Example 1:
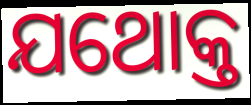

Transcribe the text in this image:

ଯଥୋକ୍ତ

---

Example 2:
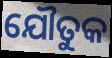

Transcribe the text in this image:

ଯୌତୁକ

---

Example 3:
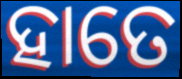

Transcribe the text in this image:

ହାତେ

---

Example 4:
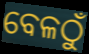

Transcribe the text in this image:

ବେଳଠୁଁ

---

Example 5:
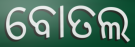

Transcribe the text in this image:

ବୋତଲ